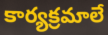
కార్యక్రమాలే